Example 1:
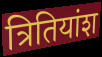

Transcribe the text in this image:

त्रितियांश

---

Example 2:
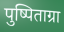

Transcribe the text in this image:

पुष्पिताग्रा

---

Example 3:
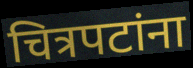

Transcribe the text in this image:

चित्रपटांना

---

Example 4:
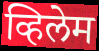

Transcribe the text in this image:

व्हिलेम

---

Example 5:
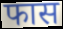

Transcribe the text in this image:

फास